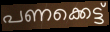
പണക്കെട്ട്